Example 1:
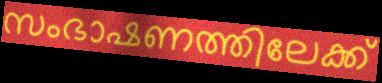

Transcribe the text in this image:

സംഭാഷണത്തിലേക്ക്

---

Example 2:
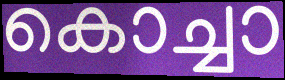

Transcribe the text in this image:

കൊച്ചാ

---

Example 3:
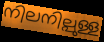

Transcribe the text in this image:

നിലനില്പുള്ള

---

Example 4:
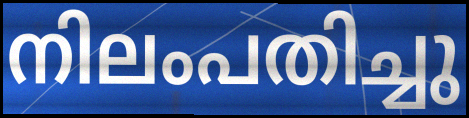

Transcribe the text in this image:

നിലംപതിച്ചു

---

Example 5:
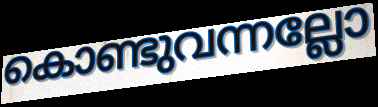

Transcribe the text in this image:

കൊണ്ടുവന്നല്ലോ